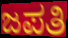
ಜಪತಿ